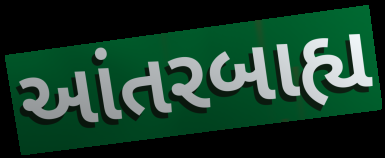
આંતરબાહ્ય